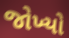
જોખ્યો